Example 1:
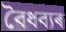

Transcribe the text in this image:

বৈধব্যৰ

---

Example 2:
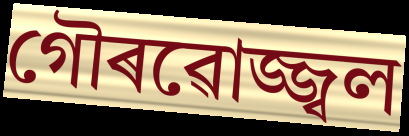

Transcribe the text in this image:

গৌৰৱোজ্জ্বল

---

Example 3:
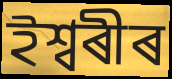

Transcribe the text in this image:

ইশ্বৰীৰ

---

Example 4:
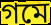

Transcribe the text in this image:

গমে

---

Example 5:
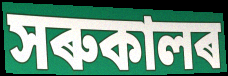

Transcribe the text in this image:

সৰুকালৰ